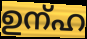
ഉന്ഹ